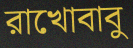
রাখোবাবু